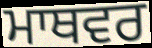
ਮਾਥਵਰ